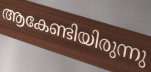
ആകേണ്ടിയിരുന്നു